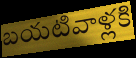
బయటివాళ్లకి